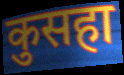
कुसहा